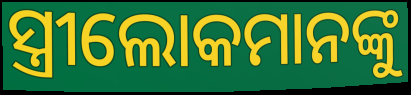
ସ୍ତ୍ରୀଲୋକମାନଙ୍କୁ